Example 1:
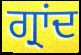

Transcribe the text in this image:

ਗ੍ਰਾਂਦ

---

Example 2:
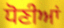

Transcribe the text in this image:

ਧੋਣੀਆਂ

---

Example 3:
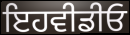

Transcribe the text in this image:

ਇਹਵੀਡੀਓ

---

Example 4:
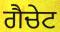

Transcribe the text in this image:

ਗੈਚੇਟ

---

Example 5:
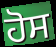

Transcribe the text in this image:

ਹੋਸ